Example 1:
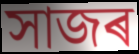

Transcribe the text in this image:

সাজৰ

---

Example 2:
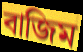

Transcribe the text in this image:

বাজিম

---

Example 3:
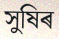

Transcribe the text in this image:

সুষিৰ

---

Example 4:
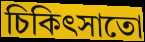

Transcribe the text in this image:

চিকিৎসাতো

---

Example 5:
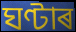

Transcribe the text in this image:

ঘণ্টাৰ